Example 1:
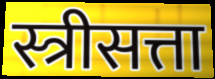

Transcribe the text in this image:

स्त्रीसत्ता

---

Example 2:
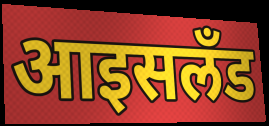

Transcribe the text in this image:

आइसलँड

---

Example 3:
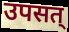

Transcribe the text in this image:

उपसत्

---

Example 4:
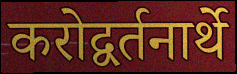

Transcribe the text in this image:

करोद्वर्तनार्थे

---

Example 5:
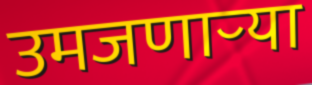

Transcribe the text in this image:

उमजणाऱ्या